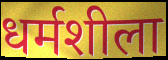
धर्मशीला